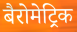
बैरोमेट्रिक